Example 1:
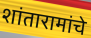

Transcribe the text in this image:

शांतारामांचे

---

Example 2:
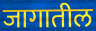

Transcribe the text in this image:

जागातील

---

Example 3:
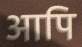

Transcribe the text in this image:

आपि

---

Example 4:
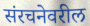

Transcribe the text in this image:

संरचनेवरील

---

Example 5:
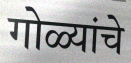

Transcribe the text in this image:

गोळ्यांचे